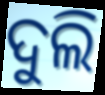
ଦୁଲି